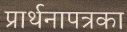
प्रार्थनापत्रका